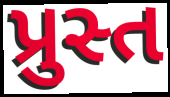
પ્રુસ્ત